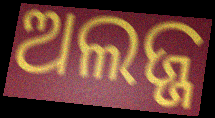
ଅଲଜ୍ଜ